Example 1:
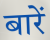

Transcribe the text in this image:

बारें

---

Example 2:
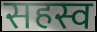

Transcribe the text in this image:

सहस्व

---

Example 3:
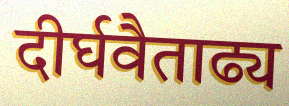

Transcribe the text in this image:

दीर्घवैताढ्य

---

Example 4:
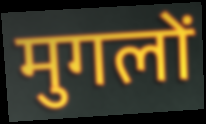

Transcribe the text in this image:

मुगलों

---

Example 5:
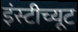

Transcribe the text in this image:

इंस्‍टीच्‍यूट